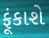
ફૂંકાશે